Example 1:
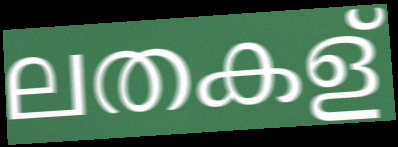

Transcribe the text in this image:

ലതകള്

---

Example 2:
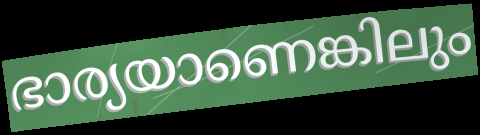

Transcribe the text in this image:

ഭാര്യയാണെങ്കിലും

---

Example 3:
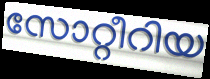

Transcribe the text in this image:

സോറ്റീറിയ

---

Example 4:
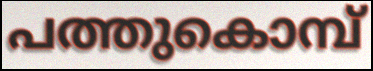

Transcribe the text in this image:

പത്തുകൊമ്പ്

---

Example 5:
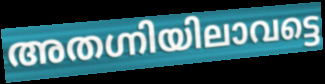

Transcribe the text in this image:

അതഗ്നിയിലാവട്ടെ